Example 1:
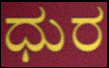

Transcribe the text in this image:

ಧುರ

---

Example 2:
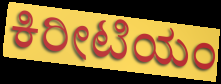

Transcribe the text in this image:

ಕಿರೀಟಿಯಂ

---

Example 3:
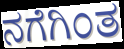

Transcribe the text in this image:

ನಗೆಗಿಂತ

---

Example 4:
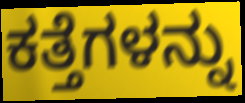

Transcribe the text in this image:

ಕತ್ತೆಗಳನ್ನು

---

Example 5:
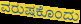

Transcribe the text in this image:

ವರುಷಕೊಂದು